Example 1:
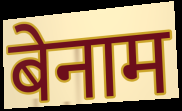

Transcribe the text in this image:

बेनाम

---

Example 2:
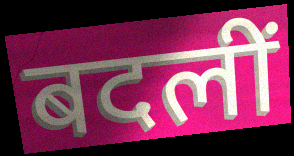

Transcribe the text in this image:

बदलीं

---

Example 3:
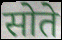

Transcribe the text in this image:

सोते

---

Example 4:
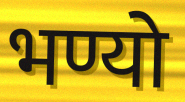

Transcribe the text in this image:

भण्यो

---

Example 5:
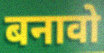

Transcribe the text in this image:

बनावो